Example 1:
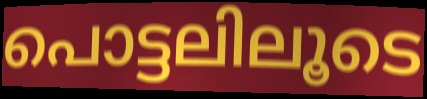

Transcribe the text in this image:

പൊട്ടലിലൂടെ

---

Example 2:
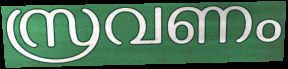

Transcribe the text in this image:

സ്രവണം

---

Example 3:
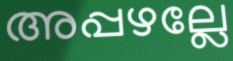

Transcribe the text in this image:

അപ്പഴല്ലേ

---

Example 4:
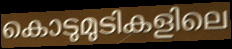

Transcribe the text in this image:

കൊടുമുടികളിലെ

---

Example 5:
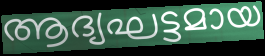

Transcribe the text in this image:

ആദ്യഘട്ടമായ